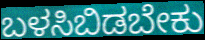
ಬಳಸಿಬಿಡಬೇಕು